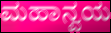
ಮಹಾನ್ವಯ